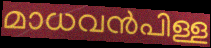
മാധവൻപിള്ള